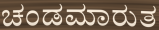
ಚಂಡಮಾರುತ